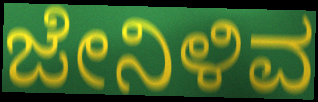
ಜೇನಿಳಿವ